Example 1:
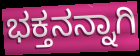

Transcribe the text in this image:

ಭಕ್ತನನ್ನಾಗಿ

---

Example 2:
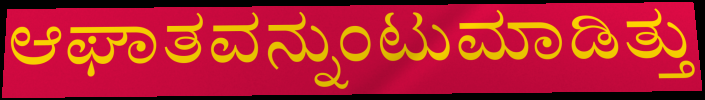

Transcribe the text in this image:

ಆಘಾತವನ್ನುಂಟುಮಾಡಿತ್ತು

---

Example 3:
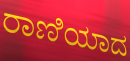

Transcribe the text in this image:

ರಾಣಿಯಾದ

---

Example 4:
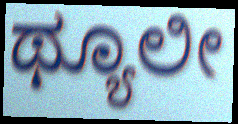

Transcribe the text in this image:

ಥ್ಯೂಲೀ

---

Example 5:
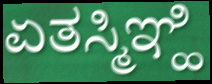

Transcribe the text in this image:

ಏತಸ್ಮಿಞ್ಹಿ